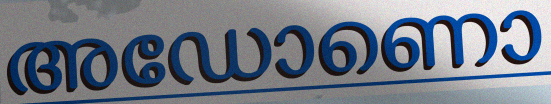
അഡോണൊ